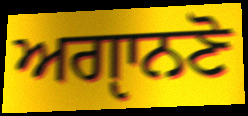
ਅਗੵਾਨਣੋ